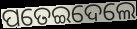
ପତେଇଦେଲେ